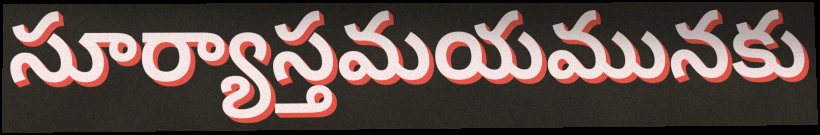
సూర్యాస్తమయమునకు